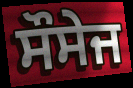
ਸੌਸੇਜ